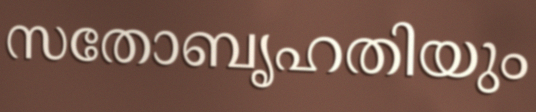
സതോബൃഹതിയും